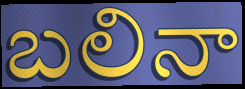
బలినా